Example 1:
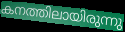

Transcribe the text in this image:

കനത്തിലായിരുന്നു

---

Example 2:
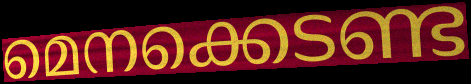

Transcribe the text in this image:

മെനക്കെടണ്ട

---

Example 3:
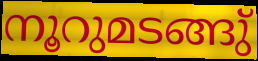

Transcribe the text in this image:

നൂറുമടങ്ങു്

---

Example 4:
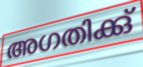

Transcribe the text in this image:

അഗതിക്കു്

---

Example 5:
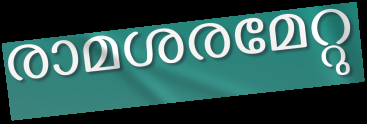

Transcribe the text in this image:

രാമശരമേറ്റു